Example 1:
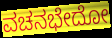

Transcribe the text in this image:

ವಚನಭೇದೋ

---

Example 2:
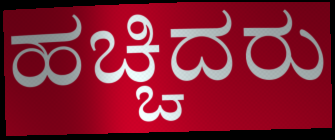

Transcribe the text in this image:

ಹಚ್ಚಿದರು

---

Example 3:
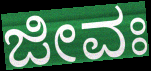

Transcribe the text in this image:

ಜೀವಃ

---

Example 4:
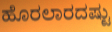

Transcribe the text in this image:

ಹೊರಲಾರದಷ್ಟು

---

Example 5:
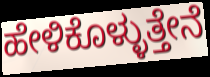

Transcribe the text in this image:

ಹೇಳಿಕೊಳ್ಳುತ್ತೇನೆ